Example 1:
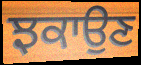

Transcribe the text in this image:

ਝਕਾਉਣ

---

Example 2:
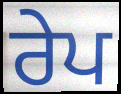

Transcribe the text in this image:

ਰੇਪ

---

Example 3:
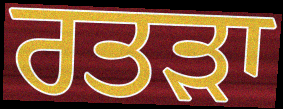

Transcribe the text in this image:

ਰਤੜਾ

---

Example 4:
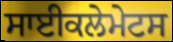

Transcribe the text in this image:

ਸਾਈਕਲੇਮੇਟਸ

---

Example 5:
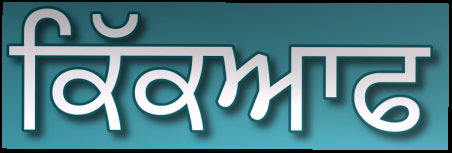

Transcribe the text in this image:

ਕਿੱਕਆਫ